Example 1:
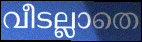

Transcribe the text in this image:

വീടല്ലാതെ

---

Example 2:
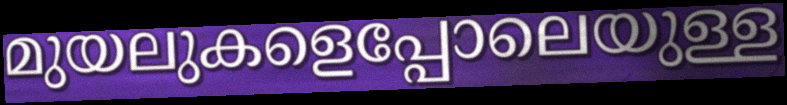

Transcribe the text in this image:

മുയലുകളെപ്പോലെയുള്ള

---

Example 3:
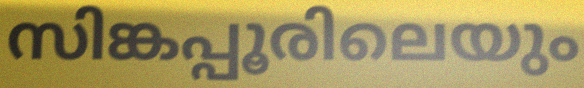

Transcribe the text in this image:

സിങ്കപ്പൂരിലെയും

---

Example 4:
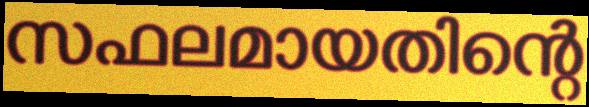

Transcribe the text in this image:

സഫലമായതിന്റെ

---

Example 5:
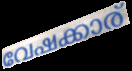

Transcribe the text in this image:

വേഷക്കാര്